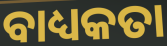
ବାଧ୍ୟକତା